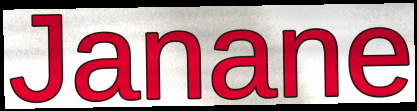
Janane